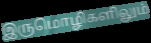
இருமொழிகளிலும்